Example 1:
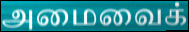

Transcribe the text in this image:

அமைவைக்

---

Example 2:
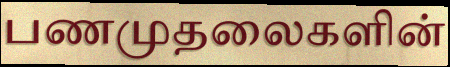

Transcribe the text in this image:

பணமுதலைகளின்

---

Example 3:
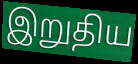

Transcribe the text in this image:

இறுதிய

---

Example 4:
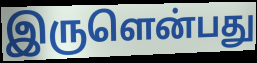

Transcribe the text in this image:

இருளென்பது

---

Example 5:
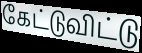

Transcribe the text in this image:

கேட்டுவிட்டு